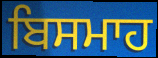
ਬਿਸਮਾਹ